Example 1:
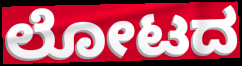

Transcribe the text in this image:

ಲೋಟದ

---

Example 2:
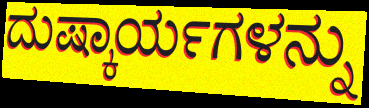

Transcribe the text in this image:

ದುಷ್ಕಾರ್ಯಗಳನ್ನು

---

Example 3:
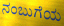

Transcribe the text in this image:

ನಂಬುಗೆಯ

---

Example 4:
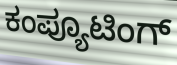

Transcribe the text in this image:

ಕಂಪ್ಯೂಟಿಂಗ್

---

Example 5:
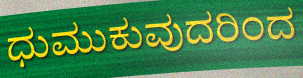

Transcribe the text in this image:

ಧುಮುಕುವುದರಿಂದ